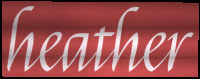
heather